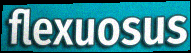
flexuosus